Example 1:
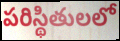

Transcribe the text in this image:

పరిస్థితులలో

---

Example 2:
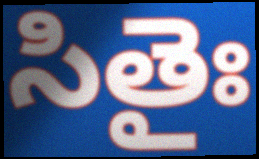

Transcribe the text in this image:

సితైః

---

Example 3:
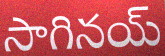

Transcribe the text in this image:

సాగినయ్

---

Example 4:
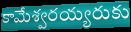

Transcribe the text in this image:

కామేశ్వరయ్యరుకు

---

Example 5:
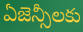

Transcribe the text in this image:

ఏజెన్సీలకు